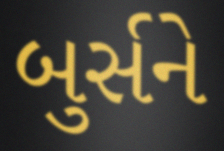
બુર્સને